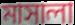
মাসালা